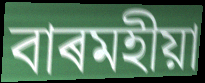
বাৰমহীয়া